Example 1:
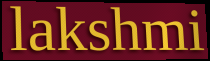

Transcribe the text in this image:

lakshmi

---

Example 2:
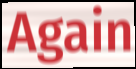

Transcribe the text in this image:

Again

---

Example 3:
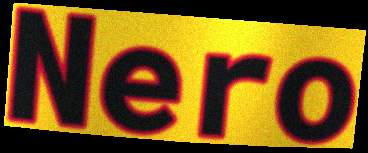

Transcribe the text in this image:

Nero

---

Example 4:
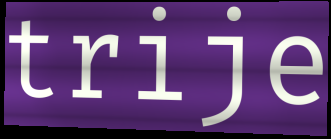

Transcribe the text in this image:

trije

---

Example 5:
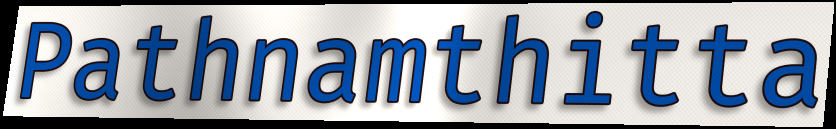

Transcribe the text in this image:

Pathnamthitta